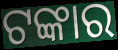
ଟଙ୍କାର